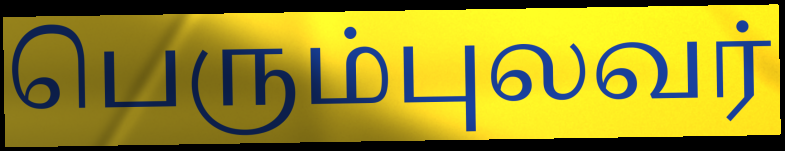
பெரும்புலவர்